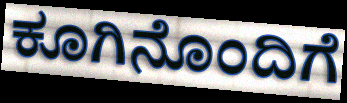
ಕೂಗಿನೊಂದಿಗೆ